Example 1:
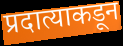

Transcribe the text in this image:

प्रदात्याकडून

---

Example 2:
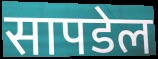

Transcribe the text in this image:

सापडेल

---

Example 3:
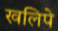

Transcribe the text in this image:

खलिपे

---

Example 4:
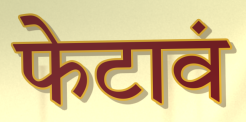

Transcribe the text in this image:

फेटावं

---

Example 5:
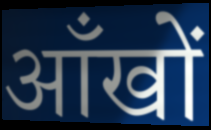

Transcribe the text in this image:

आँखों